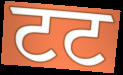
टट